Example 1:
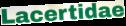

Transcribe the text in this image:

Lacertidae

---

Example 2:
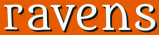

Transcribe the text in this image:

ravens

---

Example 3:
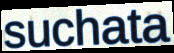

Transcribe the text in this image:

suchata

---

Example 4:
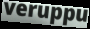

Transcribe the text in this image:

veruppu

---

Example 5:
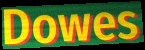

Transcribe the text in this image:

Dowes